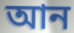
আন